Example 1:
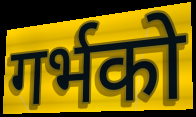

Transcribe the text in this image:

गर्भको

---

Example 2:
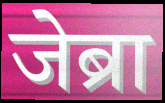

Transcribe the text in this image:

जेब्रा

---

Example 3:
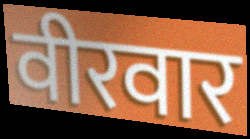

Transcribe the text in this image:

वीरवार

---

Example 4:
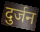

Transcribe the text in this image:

दुर्जन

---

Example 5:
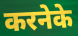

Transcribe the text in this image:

करनेके